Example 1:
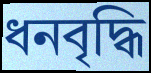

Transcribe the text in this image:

ধনবৃদ্ধি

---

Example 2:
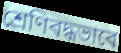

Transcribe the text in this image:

শ্রেণিবদ্ধভাবে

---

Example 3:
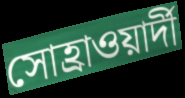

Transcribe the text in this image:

সোহ্রাওয়ার্দী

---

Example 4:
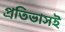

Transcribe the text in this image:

প্রতিভাসই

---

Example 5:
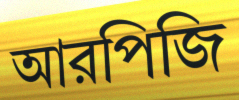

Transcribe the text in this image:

আরপিজি